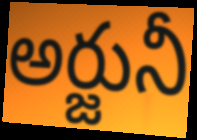
అర్జునీ